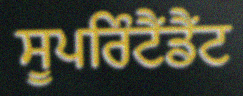
ਸੂਪਰਿੰਟੈਂਡੈਂਟ